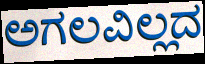
ಅಗಲವಿಲ್ಲದ